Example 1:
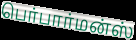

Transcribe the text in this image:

பெர்பார்மன்ஸ்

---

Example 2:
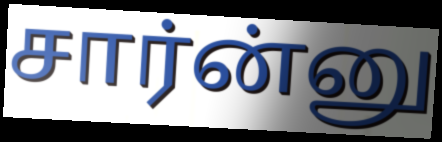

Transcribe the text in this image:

சார்ன்னு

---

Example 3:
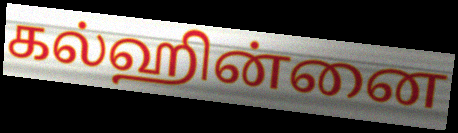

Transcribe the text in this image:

கல்ஹின்னை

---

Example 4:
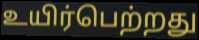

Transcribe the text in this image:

உயிர்பெற்றது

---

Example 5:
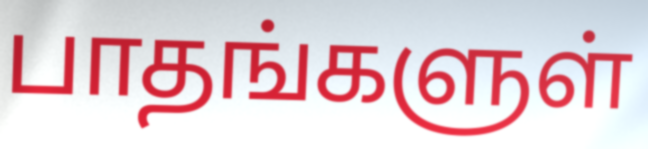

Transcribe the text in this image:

பாதங்களுள்